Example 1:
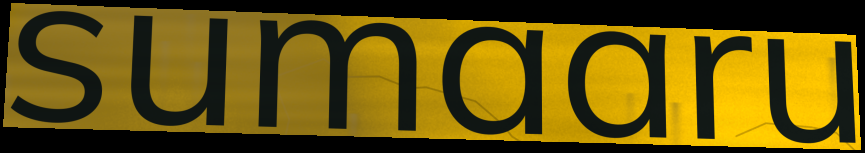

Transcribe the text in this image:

sumaaru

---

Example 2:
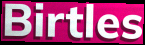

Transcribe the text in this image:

Birtles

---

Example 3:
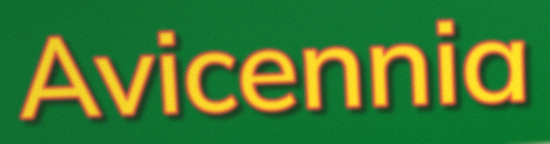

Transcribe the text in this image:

Avicennia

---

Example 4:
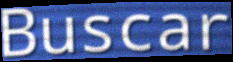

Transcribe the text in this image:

Buscar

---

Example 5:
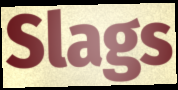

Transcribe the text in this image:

Slags